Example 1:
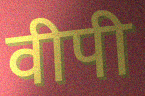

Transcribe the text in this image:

वीपी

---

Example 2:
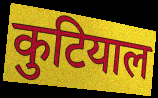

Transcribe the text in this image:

कुटियाल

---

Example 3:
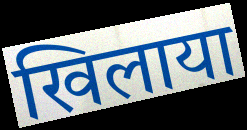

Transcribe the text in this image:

खिलाया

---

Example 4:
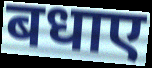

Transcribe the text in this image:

बधाए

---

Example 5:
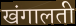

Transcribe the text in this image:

खंगालती